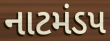
નાટમંડપ